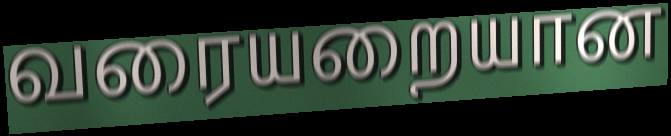
வரையறையான